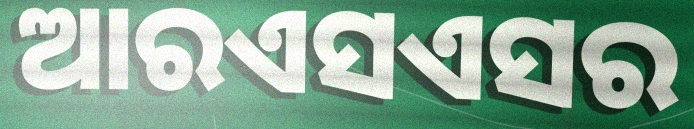
ଆରଏସଏସର